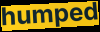
humped